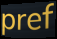
pref